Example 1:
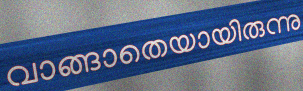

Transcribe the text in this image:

വാങ്ങാതെയായിരുന്നു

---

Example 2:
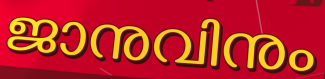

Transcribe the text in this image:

ജാനുവിനും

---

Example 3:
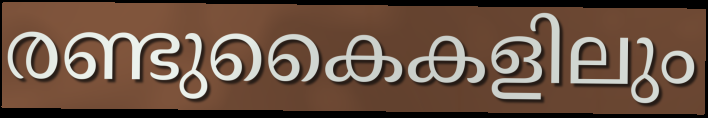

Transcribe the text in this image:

രണ്ടുകൈകളിലും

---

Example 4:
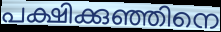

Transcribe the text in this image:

പക്ഷിക്കുഞ്ഞിനെ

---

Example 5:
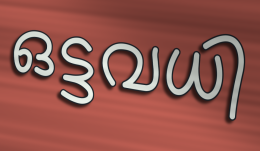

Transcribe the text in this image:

ഒട്ടവധി